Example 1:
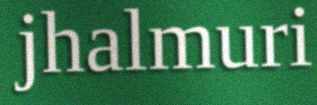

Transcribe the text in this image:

jhalmuri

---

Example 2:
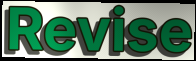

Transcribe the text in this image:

Revise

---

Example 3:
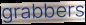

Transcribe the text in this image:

grabbers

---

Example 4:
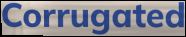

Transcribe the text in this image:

Corrugated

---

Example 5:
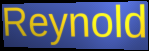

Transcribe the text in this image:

Reynold